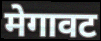
मेगावट